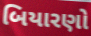
બિયારણો